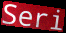
Seri